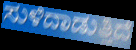
ಸುಳಿದಾಡುತ್ತಿದೆ